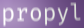
propyl